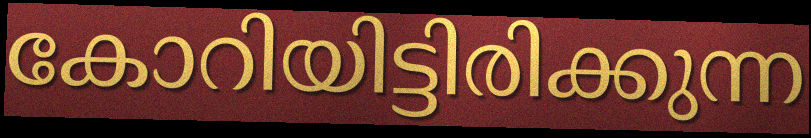
കോറിയിട്ടിരിക്കുന്ന